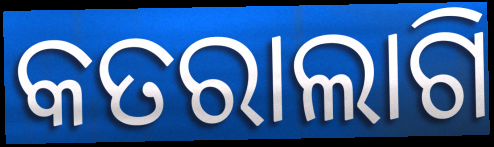
କତରାଲାଗି